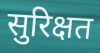
सुरिक्षत